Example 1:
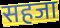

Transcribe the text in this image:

सहजा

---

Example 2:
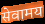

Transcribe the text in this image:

सेवामय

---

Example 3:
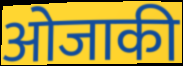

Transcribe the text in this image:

ओजाकी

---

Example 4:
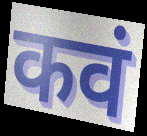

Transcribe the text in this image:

कवं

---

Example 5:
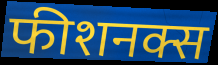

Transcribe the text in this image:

फीशनक्स